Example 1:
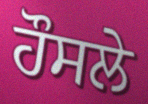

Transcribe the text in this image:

ਹੌਸਲੇ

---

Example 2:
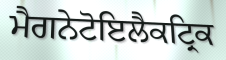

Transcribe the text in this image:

ਮੈਗਨੇਟੋਇਲੈਕਟ੍ਰਿਕ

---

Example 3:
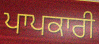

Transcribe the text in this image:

ਪਾਪਕਾਰੀ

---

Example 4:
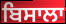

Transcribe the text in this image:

ਬਿਸਾਲਾ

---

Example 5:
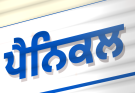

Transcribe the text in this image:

ਪੈਨਿਕਲ